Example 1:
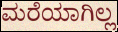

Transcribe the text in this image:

ಮರೆಯಾಗಿಲ್ಲ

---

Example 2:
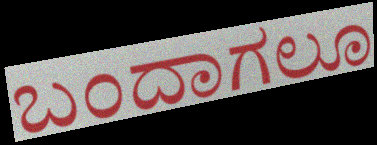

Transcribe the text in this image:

ಬಂದಾಗಲೂ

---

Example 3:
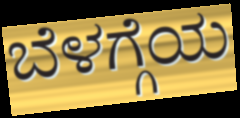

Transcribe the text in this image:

ಬೆಳಗ್ಗೆಯ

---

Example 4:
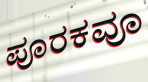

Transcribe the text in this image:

ಪೂರಕವೂ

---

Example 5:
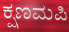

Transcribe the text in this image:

ಕ್ಷಣಮಪಿ